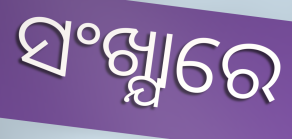
ସଂଖ୍ଯାରେ